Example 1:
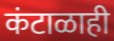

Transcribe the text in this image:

कंटाळाही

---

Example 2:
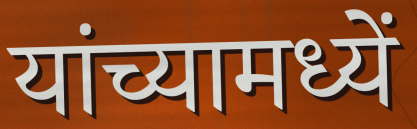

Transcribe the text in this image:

यांच्यामध्यें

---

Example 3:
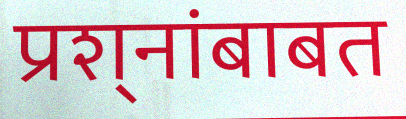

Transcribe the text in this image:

प्रश्नांबाबत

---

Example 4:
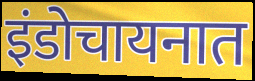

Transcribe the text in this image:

इंडोचायनात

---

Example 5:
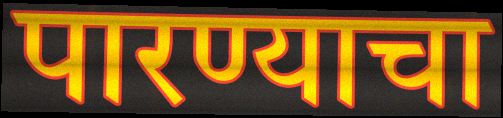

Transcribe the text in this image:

पारण्याचा